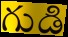
గుడి